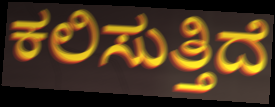
ಕಲಿಸುತ್ತಿದೆ